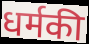
धर्मकी